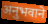
अनुभवाने